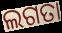
ଲଗତା